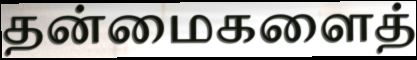
தன்மைகளைத்